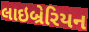
લાઇબ્રેરિયન